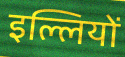
इल्लियों